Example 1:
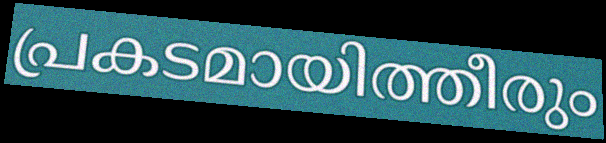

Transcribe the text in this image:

പ്രകടമായിത്തീരും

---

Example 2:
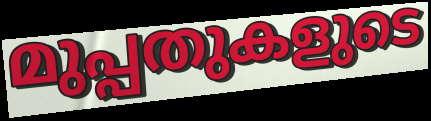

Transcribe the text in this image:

മുപ്പതുകളുടെ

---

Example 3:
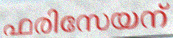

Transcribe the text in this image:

ഫരിസേയന്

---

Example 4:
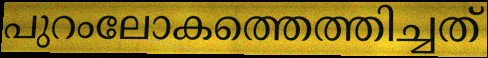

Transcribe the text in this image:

പുറംലോകത്തെത്തിച്ചത്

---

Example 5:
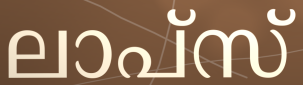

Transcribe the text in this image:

ലാപ്സ്